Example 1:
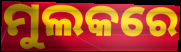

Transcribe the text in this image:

ମୁଲକରେ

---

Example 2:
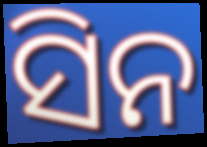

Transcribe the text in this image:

ସିନ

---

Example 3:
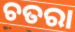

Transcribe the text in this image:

ଚତରା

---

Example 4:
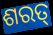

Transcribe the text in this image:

ଶରତ୍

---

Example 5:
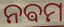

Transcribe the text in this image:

ନଵମ